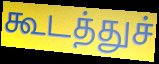
கூடத்துச்